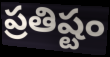
ప్రతిష్టం